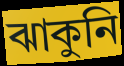
ঝাকুনি